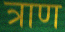
त्राण